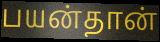
பயன்தான்